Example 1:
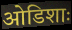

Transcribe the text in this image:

ओडिशाः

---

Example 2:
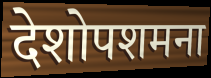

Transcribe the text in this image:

देशोपशमना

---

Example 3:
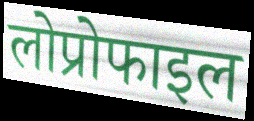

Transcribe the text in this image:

लोप्रोफाइल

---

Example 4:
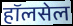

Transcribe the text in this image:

हॉलसेल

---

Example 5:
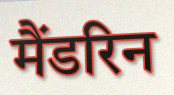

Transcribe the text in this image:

मैंडरिन